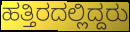
ಹತ್ತಿರದಲ್ಲಿದ್ದರು